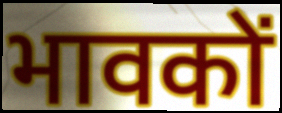
भावकों